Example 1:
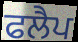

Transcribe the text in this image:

ਫਲੈਪ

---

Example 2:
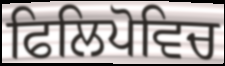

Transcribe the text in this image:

ਫਿਲਿਪੋਵਿਚ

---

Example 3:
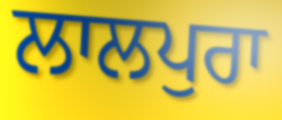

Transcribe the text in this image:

ਲਾਲਪੁਰਾ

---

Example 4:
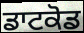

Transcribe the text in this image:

ਡਾਟਕੋਡ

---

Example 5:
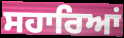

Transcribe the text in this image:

ਸਹਾਰਿਆਂ